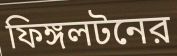
ফিঙ্গলটনের